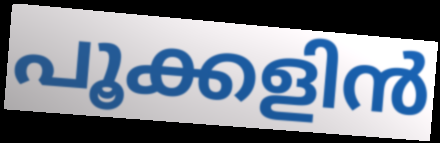
പൂക്കളിൻ